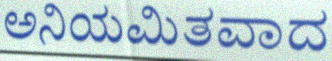
ಅನಿಯಮಿತವಾದ